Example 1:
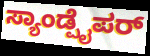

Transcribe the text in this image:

ಸ್ಯಾಂಡ್ಪೈಪರ್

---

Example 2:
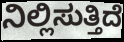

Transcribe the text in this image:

ನಿಲ್ಲಿಸುತ್ತಿದೆ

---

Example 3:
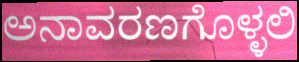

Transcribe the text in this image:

ಅನಾವರಣಗೊಳ್ಳಲಿ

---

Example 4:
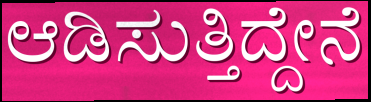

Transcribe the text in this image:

ಆಡಿಸುತ್ತಿದ್ದೇನೆ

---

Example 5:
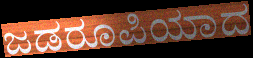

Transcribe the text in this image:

ಜಡರೂಪಿಯಾದ